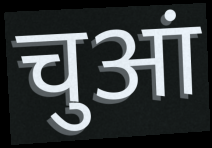
चुआं